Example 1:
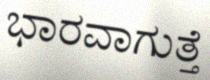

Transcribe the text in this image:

ಭಾರವಾಗುತ್ತೆ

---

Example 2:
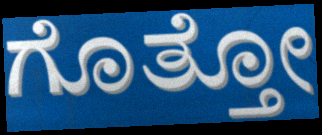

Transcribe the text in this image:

ಗೊತ್ತೋ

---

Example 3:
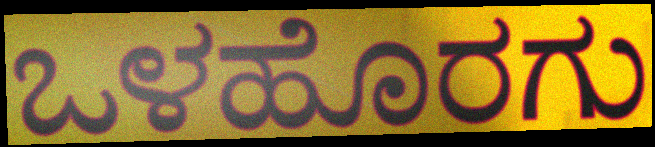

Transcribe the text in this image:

ಒಳಹೊರಗು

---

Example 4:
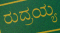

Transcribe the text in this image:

ರುದ್ರಯ್ಯ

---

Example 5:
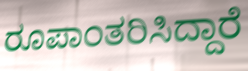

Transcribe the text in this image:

ರೂಪಾಂತರಿಸಿದ್ದಾರೆ